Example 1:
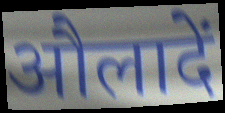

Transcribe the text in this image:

औलादें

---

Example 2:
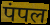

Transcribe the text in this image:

पंपल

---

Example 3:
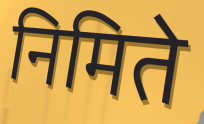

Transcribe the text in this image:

निमिते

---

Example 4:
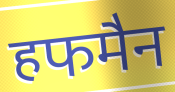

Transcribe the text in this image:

हफमैन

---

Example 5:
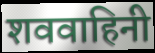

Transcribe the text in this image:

शववाहिनी